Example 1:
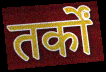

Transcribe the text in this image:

तर्कों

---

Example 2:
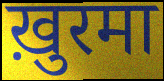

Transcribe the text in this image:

ख़ुरमा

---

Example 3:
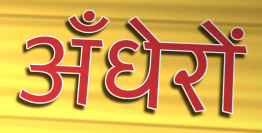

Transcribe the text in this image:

अँधेरों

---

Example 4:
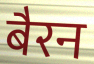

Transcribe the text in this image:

बैरन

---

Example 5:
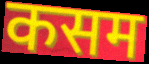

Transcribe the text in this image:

कसम